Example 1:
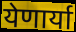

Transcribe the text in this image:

येणार्या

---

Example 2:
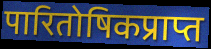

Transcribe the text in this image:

पारितोषिकप्राप्त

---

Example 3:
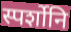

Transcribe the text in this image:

स्पर्शोनि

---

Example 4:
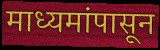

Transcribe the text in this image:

माध्यमांपासून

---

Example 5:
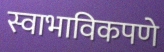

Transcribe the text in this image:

स्वाभाविकपणे